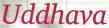
Uddhava